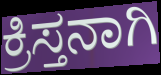
ಕ್ರಿಸ್ತನಾಗಿ